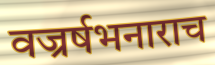
वज्रर्षभनाराच